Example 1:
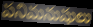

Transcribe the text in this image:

పనిమనుషులు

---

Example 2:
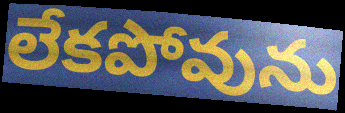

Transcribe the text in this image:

లేకపోవును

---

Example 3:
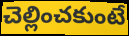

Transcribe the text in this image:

చెల్లించకుంటే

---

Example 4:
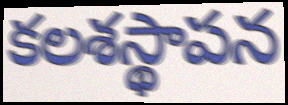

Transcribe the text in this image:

కలశస్థాపన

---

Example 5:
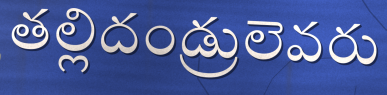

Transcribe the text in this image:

తల్లిదండ్రులెవరు